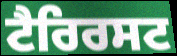
ਟੈਰਿਰਸਟ